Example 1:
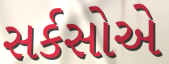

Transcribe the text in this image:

સર્કસોએ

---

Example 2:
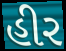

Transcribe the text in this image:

હીર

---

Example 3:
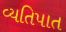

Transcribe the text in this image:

વ્યતિપાત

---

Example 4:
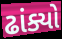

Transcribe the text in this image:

ઢાંક્યો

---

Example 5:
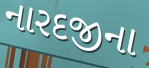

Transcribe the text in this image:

નારદજીના